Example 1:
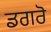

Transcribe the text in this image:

ਡਗਰੋ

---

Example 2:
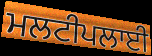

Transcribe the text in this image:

ਮਲਟੀਪਲਾਈ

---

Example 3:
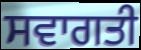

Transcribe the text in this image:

ਸਵਾਗਤੀ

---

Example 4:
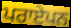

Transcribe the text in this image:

ਪਰਾਏਪਨ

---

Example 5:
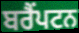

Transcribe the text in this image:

ਬਰੈਂਪਟਨ